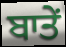
ਬਾਤੇਂ